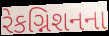
રેકગ્નિશનના